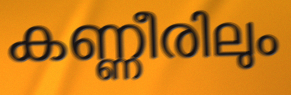
കണ്ണീരിലും